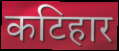
कटिहार